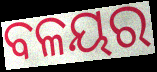
ବଳୟର